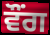
ਵੌਂਗ